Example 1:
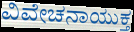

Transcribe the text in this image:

ವಿವೇಚನಾಯುಕ್ತ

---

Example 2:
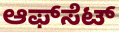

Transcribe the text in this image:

ಆಫ್‍ಸೆಟ್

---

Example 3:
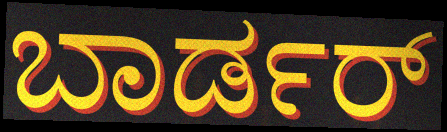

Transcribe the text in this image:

ಬಾರ್ಡರ್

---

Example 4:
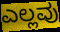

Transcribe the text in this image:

ಎಲ್ಲವು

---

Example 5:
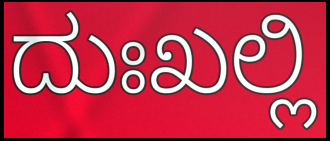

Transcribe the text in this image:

ದುಃಖಲ್ಲಿ